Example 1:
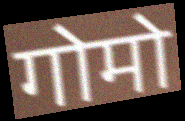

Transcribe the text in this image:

गोमो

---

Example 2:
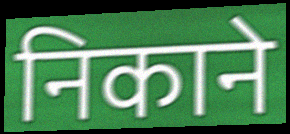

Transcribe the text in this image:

निकाने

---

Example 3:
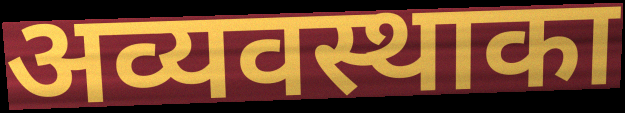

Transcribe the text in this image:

अव्यवस्थाका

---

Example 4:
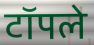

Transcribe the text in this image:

टॉपले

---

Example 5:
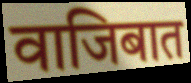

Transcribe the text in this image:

वाजिबात